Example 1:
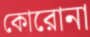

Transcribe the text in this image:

কোরোনা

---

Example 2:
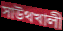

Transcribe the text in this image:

সাউথখালী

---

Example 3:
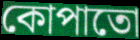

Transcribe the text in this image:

কোপাতো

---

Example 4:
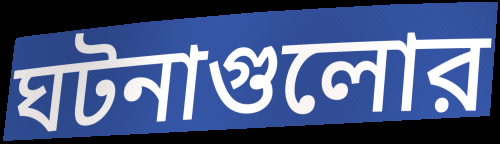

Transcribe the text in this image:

ঘটনাগুলোর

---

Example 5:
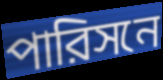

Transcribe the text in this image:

পারিসনে